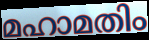
മഹാമതിം